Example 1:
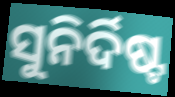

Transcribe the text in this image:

ସୁନିର୍ଦିଷ୍ଟ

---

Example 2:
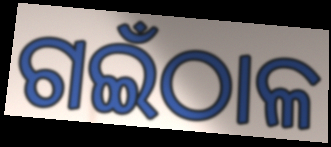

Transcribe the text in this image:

ଗଇଁଠାଳ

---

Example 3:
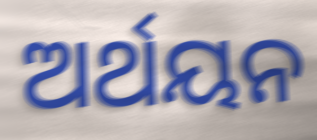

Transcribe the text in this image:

ଅର୍ଥୟନ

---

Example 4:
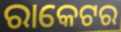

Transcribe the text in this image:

ରାକେଟର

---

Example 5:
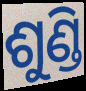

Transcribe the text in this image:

ଶୁଣ୍ଡି